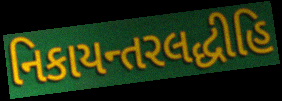
નિકાયન્તરલદ્ધીહિ